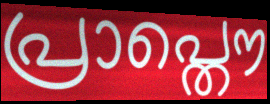
പ്രാപ്തൌ